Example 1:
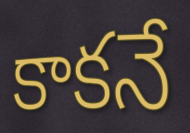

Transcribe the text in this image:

కాకనే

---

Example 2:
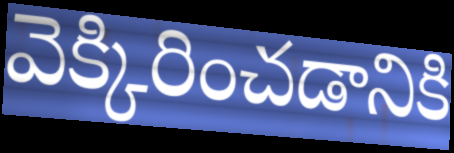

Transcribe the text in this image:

వెక్కిరించడానికి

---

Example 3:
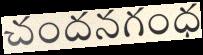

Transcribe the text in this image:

చందనగంధ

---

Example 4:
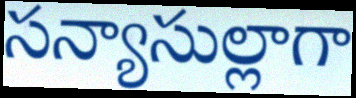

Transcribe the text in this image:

సన్యాసుల్లాగా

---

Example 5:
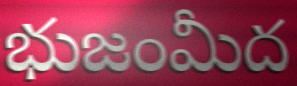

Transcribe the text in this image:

భుజంమీద